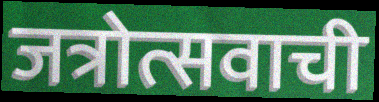
जत्रोत्सवाची